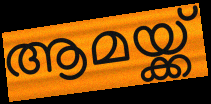
ആമയ്ക്ക്